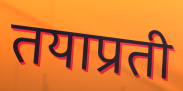
तयाप्रती